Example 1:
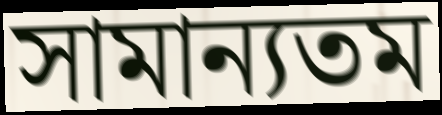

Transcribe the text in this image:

সামান্যতম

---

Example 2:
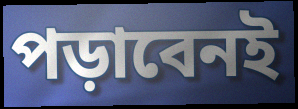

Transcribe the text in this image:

পড়াবেনই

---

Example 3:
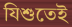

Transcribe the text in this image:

যিশুতেই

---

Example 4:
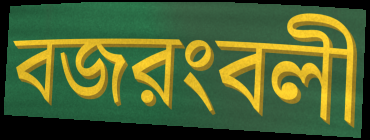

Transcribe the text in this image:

বজরংবলী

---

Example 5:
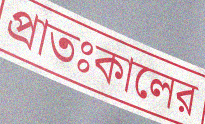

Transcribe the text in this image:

প্রাতঃকালের